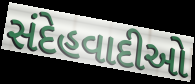
સંદેહવાદીઓ